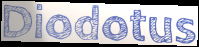
Diodotus